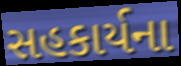
સહકાર્યના